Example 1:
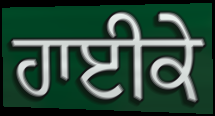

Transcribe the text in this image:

ਹਾਈਕੇ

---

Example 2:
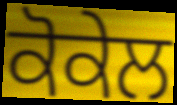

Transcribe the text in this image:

ਕੋਕੇਲ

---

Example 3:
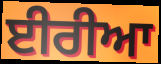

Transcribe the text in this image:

ਈਰੀਆ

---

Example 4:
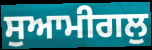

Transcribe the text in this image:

ਸੁਆਮੀਗਲੁ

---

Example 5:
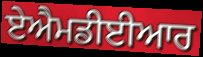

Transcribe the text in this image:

ਏਐਮਡੀਈਆਰ